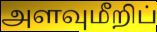
அளவுமீறிப்